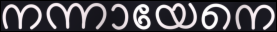
നന്നായേനെ